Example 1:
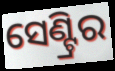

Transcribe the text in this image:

ସେଣ୍ଟ୍ରିର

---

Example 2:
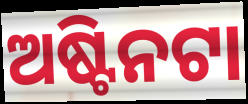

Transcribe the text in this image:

ଅଷ୍ଟିନଟା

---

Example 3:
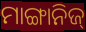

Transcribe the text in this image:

ମାଙ୍ଗାନିଜ୍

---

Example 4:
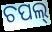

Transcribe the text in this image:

ଚପଲ୍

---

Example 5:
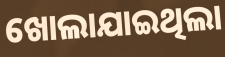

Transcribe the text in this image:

ଖୋଲାଯାଇଥିଲା